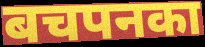
बचपनका